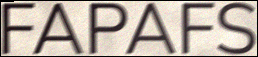
FAPAFS